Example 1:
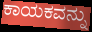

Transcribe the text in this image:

ಕಾಯಕವನ್ನು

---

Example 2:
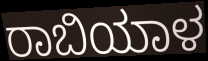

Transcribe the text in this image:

ರಾಬಿಯಾಳ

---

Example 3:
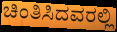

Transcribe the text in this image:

ಚಿಂತಿಸಿದವರಲ್ಲಿ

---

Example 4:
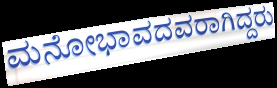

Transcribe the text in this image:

ಮನೋಭಾವದವರಾಗಿದ್ದರು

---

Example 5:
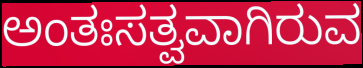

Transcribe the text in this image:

ಅಂತಃಸತ್ವವಾಗಿರುವ